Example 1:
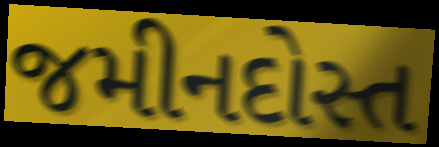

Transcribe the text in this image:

જમીનદોસ્ત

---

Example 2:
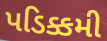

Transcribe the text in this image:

પડિક્કમી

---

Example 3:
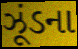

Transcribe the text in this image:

ઝૂંડના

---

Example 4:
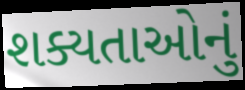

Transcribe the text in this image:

શક્યતાઓનું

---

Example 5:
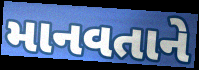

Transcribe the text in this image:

માનવતાને